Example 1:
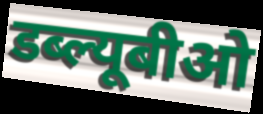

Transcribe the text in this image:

डब्ल्यूबीओ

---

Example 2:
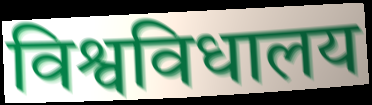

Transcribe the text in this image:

विश्वविधालय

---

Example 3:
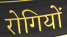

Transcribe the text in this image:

रोगियों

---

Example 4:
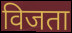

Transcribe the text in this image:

विजता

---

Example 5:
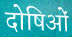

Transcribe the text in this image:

दोषिओं